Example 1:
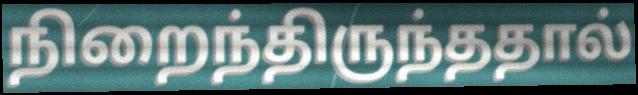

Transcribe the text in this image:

நிறைந்திருந்ததால்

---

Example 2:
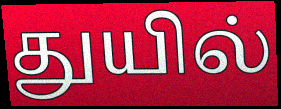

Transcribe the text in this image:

துயில்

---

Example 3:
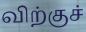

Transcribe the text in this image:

விற்குச்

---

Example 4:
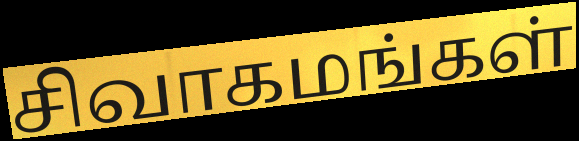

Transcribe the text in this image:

சிவாகமங்கள்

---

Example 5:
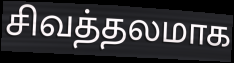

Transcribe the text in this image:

சிவத்தலமாக